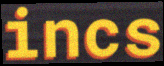
incs